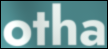
otha